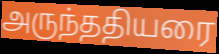
அருந்ததியரை